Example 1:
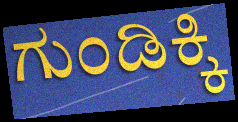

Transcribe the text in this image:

ಗುಂಡಿಕ್ಕಿ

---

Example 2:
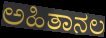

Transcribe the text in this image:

ಅಹಿತಾನಲ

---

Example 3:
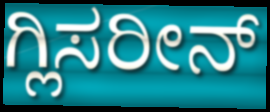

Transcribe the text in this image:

ಗ್ಲಿಸರೀನ್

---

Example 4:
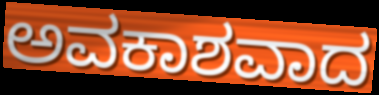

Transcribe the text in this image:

ಅವಕಾಶವಾದ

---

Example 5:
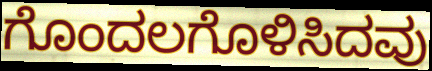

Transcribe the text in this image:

ಗೊಂದಲಗೊಳಿಸಿದವು